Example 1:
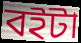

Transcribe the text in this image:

বইটা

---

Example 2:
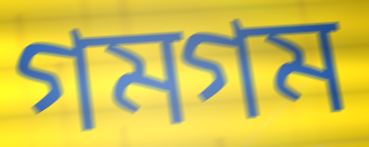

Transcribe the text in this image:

গমগম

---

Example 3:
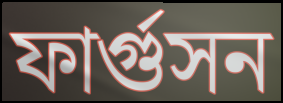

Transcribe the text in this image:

ফার্গুসন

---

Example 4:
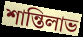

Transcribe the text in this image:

শান্তিলাভ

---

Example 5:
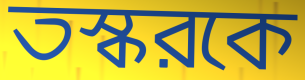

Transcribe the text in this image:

তস্করকে